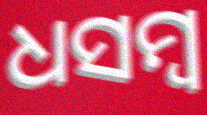
ଧସମ୍ବ